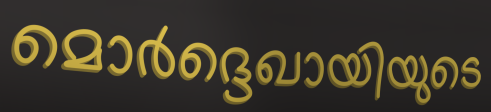
മൊർദ്ദെഖായിയുടെ